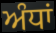
ਅੰਧਾਂ